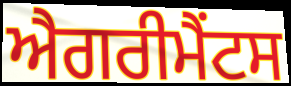
ਐਗਰੀਮੈਂਟਸ